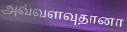
அவ்வளவுதானா